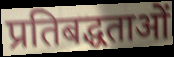
प्रतिबद्धताओं